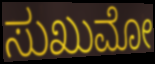
ಸುಖುಮೋ